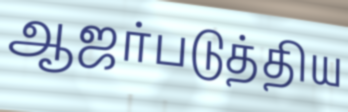
ஆஜர்படுத்திய